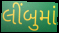
લીંબુમાં